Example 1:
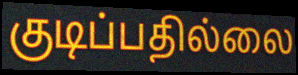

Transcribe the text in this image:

குடிப்பதில்லை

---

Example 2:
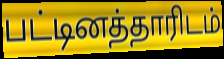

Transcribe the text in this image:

பட்டினத்தாரிடம்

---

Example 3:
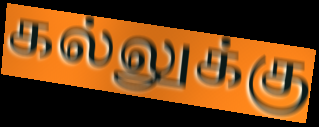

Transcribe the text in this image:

கல்லுக்கு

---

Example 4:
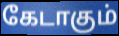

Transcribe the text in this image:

கேடாகும்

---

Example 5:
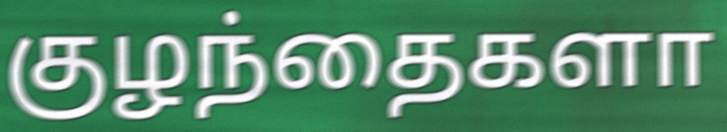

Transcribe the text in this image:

குழந்தைகளா